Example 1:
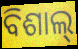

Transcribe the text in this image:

ବିଶାଲ୍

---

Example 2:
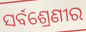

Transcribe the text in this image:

ସର୍ବଶ୍ରେଣୀର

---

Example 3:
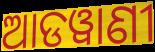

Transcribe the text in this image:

ଆଡୱାଣୀ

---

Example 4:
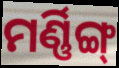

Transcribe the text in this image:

ମର୍ଣ୍ଣିଙ୍ଗ୍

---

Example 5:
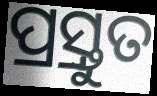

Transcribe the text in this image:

ପ୍ର୍ରସ୍ତୁତ